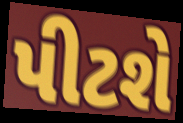
પીટશે